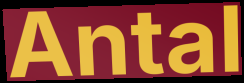
Antal